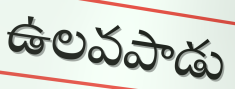
ఉలవపాడు